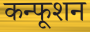
कन्फूशन